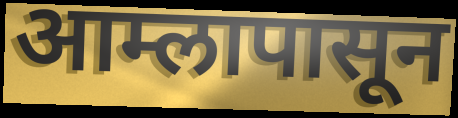
आम्लापासून